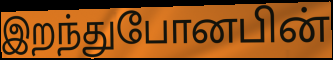
இறந்துபோனபின்